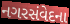
નગરસંવેદના